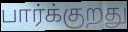
பார்க்குறது